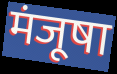
मंजूषा